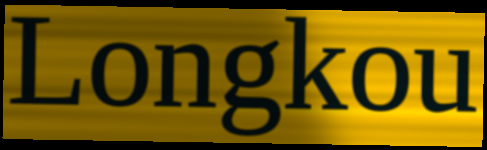
Longkou